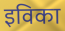
इविका